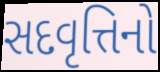
સદવૃત્તિનો